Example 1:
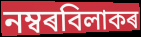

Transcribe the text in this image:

নম্বৰবিলাকৰ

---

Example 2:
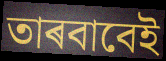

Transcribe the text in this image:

তাৰবাবেই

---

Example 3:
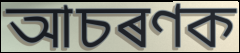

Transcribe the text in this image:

আচৰণক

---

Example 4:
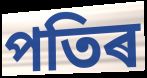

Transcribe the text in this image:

পতিৰ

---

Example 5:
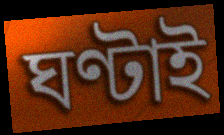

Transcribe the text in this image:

ঘণ্টাই